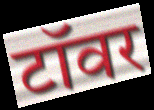
टॉवर